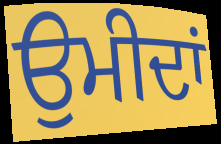
ਉਮੀਦਾਂ